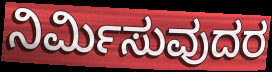
ನಿರ್ಮಿಸುವುದರ